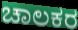
ಚಾಲಕರ